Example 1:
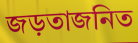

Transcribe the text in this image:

জড়তাজনিত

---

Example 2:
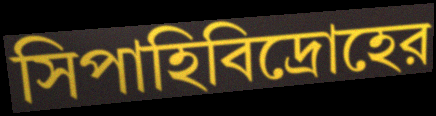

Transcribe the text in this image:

সিপাহিবিদ্রোহের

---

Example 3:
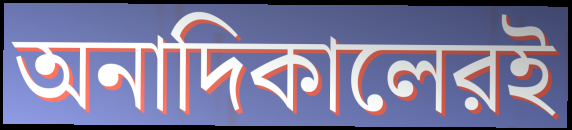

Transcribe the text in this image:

অনাদিকালেরই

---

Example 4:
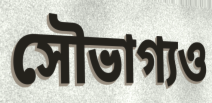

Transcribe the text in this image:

সৌভাগ্যও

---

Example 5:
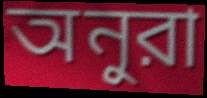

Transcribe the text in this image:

অনুরা